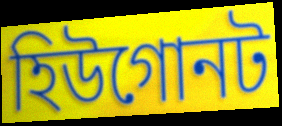
হিউগোনট